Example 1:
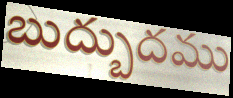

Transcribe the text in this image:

బుద్బుదము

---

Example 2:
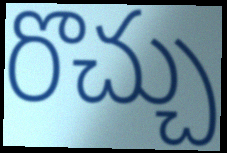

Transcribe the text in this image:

రొచ్చు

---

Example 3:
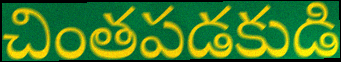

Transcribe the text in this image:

చింతపడకుడి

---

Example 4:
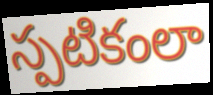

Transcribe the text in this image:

స్పటికంలా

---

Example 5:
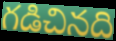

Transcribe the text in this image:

గడిచినది